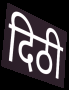
दिठी